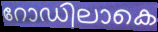
റോഡിലാകെ